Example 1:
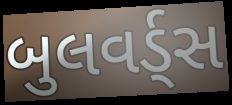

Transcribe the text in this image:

બુલવર્ડ્સ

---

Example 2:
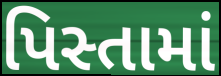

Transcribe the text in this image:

પિસ્તામાં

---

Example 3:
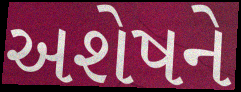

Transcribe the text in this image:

અશેષને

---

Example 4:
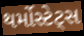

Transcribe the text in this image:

થર્મોસ્ટેટ્સ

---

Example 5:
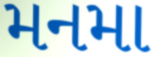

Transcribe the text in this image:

મનમા